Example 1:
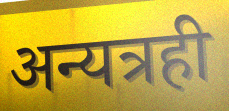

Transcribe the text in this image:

अन्यत्रही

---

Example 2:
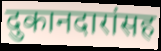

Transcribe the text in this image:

दुकानदारांसह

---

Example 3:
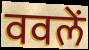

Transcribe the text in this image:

ववलें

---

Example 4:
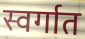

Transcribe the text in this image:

स्वर्गात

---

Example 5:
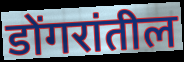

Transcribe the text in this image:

डोंगरांतील